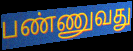
பண்ணுவது